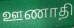
ஊணாதி